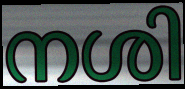
നശി